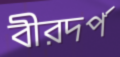
বীরদর্প